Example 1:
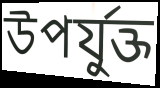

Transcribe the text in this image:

উপৰ্যুক্ত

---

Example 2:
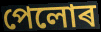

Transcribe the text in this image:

পেলোৰ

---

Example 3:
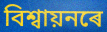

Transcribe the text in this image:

বিশ্বায়নৰে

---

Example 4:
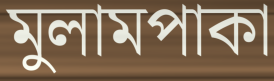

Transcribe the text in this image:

মুলামপাকা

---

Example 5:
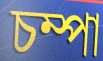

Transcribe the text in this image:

চম্পা